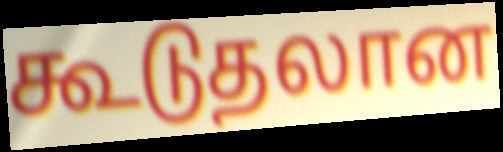
கூடுதலான